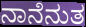
ನಾನೆನುತ